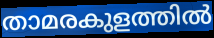
താമരകുളത്തിൽ